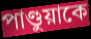
পাণ্ডুয়াকে